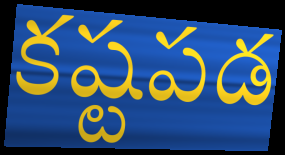
కష్టపడ